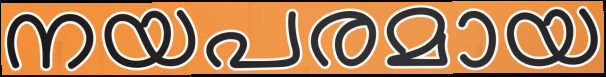
നയപരമായ